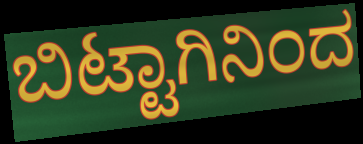
ಬಿಟ್ಟಾಗಿನಿಂದ